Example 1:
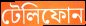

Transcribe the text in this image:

টেলিফোন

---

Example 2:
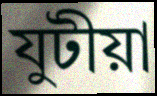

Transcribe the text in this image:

যুটীয়া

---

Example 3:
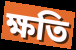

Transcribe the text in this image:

ক্ষতি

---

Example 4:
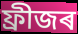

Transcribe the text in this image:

ফ্ৰীজৰ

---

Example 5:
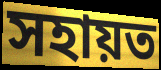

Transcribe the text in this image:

সহায়ত